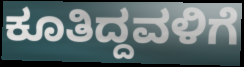
ಕೂತಿದ್ದವಳಿಗೆ